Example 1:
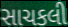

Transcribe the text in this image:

સાચકલી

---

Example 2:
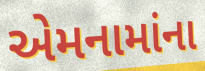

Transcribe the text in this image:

એમનામાંના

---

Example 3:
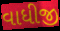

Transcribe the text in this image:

વાધીજી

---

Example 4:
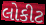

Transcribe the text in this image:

લોકીટ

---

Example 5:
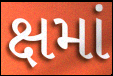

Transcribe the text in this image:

ક્ષમાં